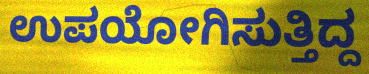
ಉಪಯೋಗಿಸುತ್ತಿದ್ದ